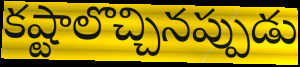
కష్టాలొచ్చినప్పుడు